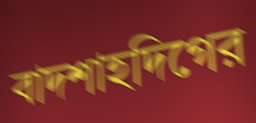
বাদশাহদিগের